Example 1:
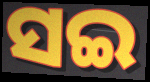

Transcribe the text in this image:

ସଇ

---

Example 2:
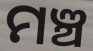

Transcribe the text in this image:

ମଞ୍ଚ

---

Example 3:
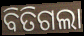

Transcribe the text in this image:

ବିତିଗଲା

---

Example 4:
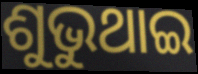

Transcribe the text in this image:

ଶୁଭୁଥାଇ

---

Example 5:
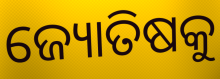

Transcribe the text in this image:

ଜ୍ୟୋତିଷକୁ